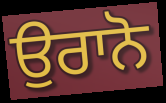
ਉਰਾਨੋ